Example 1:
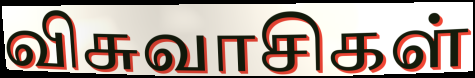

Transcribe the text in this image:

விசுவாசிகள்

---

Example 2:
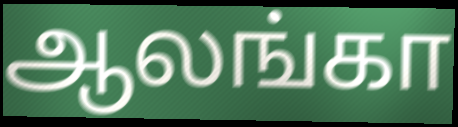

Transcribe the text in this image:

ஆலங்கா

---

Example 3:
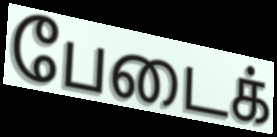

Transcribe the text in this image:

பேடைக்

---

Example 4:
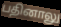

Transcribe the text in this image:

பதினாலு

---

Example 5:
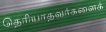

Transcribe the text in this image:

தெரியாதவர்களைக்